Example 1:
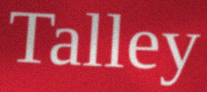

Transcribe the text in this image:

Talley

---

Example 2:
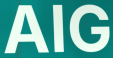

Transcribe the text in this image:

AIG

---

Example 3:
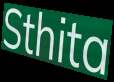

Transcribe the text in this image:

Sthita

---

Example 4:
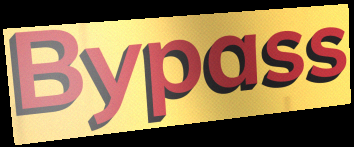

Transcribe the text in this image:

Bypass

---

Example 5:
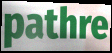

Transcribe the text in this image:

pathre